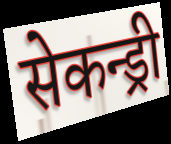
सेकन्ड्री